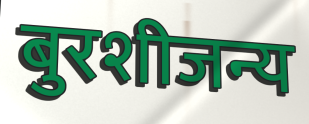
बुरशीजन्य